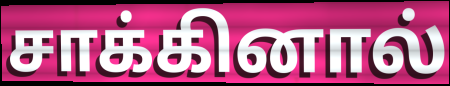
சாக்கினால்